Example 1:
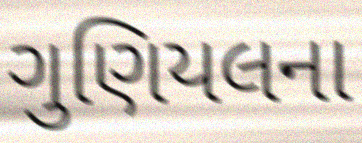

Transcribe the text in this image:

ગુણિયલના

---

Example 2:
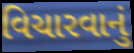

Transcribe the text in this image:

વિચારવાનું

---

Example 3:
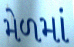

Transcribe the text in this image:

મેળમાં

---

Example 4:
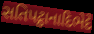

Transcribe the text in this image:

સતિપટ્ઠાનાદિભેદે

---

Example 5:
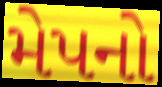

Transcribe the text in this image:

મેપનો